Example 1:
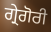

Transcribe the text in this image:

ਗ੍ਰੇਗੋਰੀ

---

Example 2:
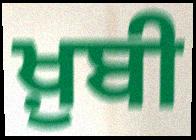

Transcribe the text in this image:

ਖ਼ੁਬੀ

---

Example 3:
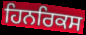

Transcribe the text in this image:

ਹਿਨਰਿਕਸ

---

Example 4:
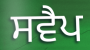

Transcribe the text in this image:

ਸਵੈਪ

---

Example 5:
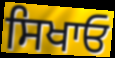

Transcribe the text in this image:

ਸਿਖਾਓ